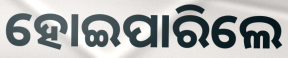
ହୋଇପାରିଲେ